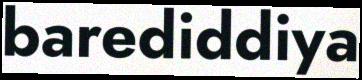
barediddiya